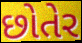
છોતેર